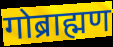
गोब्राह्मण